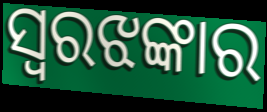
ସ୍ୱରଝଙ୍କାର